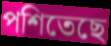
পশিতেছে